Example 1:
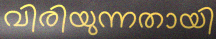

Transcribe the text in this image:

വിരിയുന്നതായി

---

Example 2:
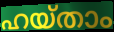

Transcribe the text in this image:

ഹയ്താം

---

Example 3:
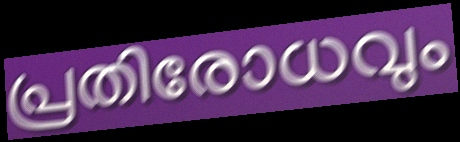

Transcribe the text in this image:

പ്രതിരോധവും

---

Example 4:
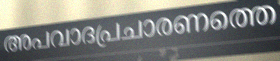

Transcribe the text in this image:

അപവാദപ്രചാരണത്തെ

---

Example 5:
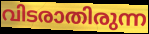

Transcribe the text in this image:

വിടരാതിരുന്ന